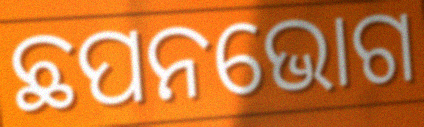
ଛପନଭୋଗ